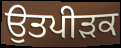
ਉਤਪੀੜਕ